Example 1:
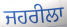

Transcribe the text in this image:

ਜਹਰੀਲਾ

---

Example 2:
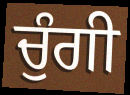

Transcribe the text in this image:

ਚੁੰਗੀ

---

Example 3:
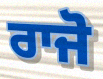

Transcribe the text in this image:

ਰਾਜੋ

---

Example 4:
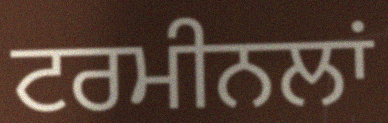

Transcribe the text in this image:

ਟਰਮੀਨਲਾਂ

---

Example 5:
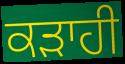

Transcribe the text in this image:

ਕੜਾਹੀ